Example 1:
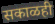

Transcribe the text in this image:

सकाळही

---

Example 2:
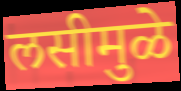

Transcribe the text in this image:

लसीमुळे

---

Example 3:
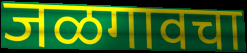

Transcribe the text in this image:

जळगावचा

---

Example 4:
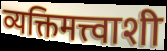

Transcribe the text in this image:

व्यक्तिमत्त्वाशी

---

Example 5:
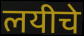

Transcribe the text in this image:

लयीचे